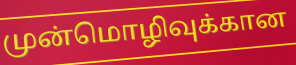
முன்மொழிவுக்கான